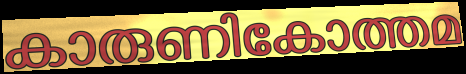
കാരുണികോത്തമ